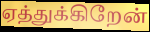
ஏத்துக்கிறேன்